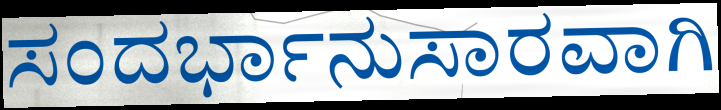
ಸಂದರ್ಭಾನುಸಾರವಾಗಿ